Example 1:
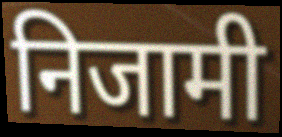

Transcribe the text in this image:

निजामी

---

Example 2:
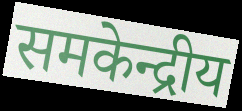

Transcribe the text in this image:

समकेन्द्रीय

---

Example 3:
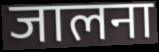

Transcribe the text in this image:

जालना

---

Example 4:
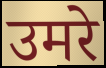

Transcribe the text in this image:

उमरे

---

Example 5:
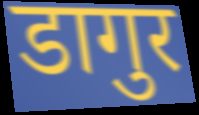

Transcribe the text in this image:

डागुर